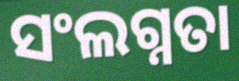
ସଂଲଗ୍ନତା